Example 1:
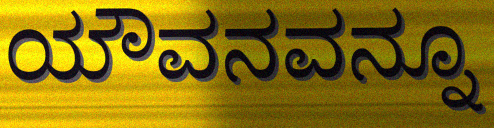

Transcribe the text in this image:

ಯೌವನವನ್ನೂ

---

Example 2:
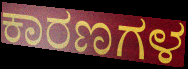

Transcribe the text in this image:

ಕಾರಣಗಳ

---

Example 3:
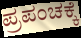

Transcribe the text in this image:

ಪ್ರಪಂಚಕ್ಕೆ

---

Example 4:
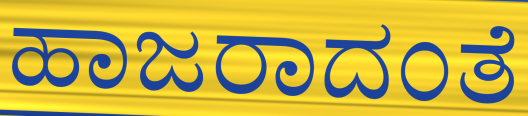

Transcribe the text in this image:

ಹಾಜರಾದಂತೆ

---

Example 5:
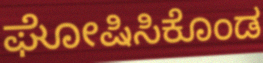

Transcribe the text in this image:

ಘೋಷಿಸಿಕೊಂಡ